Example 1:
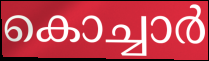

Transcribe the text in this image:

കൊച്ചാർ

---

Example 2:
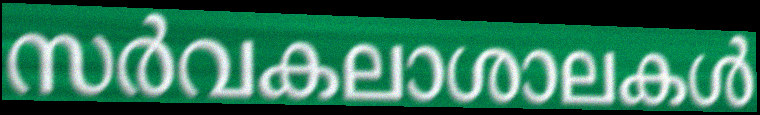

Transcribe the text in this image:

സർവകലാശാലകൾ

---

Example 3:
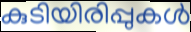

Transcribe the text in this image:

കുടിയിരിപ്പുകൾ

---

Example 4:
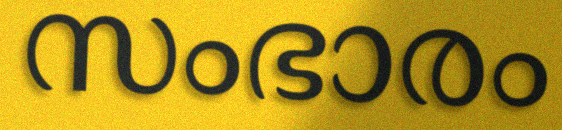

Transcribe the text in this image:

സംഭാരം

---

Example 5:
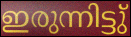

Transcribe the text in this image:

ഇരുന്നിട്ടു്